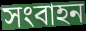
সংবাহন